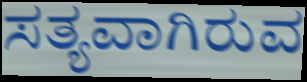
ಸತ್ಯವಾಗಿರುವ